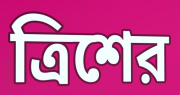
ত্রিশের